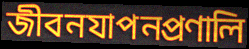
জীবনযাপনপ্রণালি